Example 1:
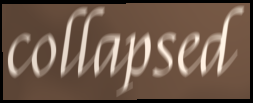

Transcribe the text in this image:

collapsed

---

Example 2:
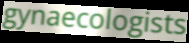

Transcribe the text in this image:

gynaecologists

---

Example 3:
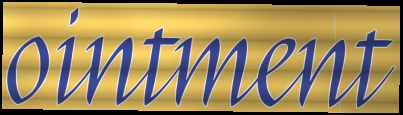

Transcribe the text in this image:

ointment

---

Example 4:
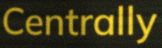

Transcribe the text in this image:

Centrally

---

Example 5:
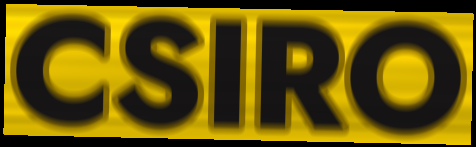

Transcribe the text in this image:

CSIRO